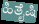
ಹಿತೈಷಿ